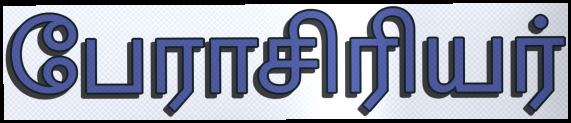
பேராசிரியர்